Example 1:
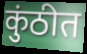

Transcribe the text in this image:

कुंठीत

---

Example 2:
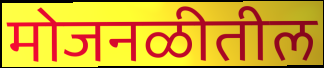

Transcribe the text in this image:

मोजनळीतील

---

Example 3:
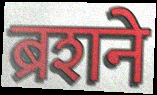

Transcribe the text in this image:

ब्रशने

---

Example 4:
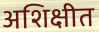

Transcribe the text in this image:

अशिक्षीत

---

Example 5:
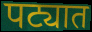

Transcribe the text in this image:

पट्यात